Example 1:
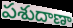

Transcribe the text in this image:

పశుదాణా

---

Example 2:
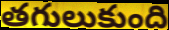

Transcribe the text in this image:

తగులుకుంది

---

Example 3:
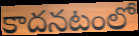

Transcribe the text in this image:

కాదనటంలో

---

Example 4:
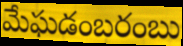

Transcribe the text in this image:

మేఘడంబరంబు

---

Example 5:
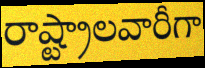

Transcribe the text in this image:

రాష్ట్రాలవారీగా